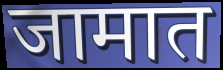
जामात